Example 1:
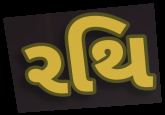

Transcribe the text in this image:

રથિ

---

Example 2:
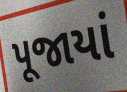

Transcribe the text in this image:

પૂજાયાં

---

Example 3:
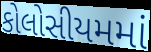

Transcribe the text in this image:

કોલોસીયમમાં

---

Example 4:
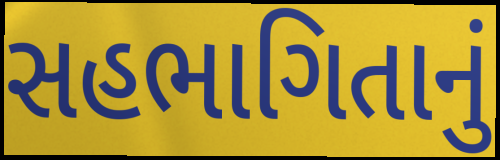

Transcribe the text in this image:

સહભાગિતાનું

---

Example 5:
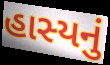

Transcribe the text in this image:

હાસ્યનું